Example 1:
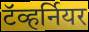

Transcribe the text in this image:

टॅव्हर्नियर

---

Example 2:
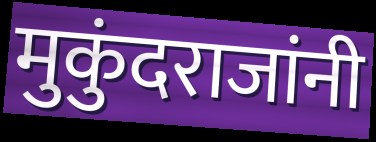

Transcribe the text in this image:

मुकुंदराजांनी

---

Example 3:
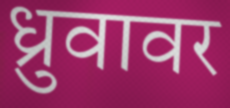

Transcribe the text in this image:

ध्रुवावर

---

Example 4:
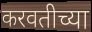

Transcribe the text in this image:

करवतीच्या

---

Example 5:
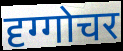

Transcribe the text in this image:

दृग्गोचर